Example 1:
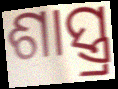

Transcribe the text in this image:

ଶାସ୍ତ୍ର୍ର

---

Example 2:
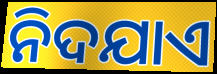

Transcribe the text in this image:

ନିଦଯାଏ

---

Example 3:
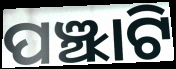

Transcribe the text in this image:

ପଞ୍ଝାଟି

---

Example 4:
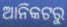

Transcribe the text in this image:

ଆନିକଟରୁ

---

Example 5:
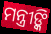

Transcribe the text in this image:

ମନ୍ତ୍ରୀଙ୍କି